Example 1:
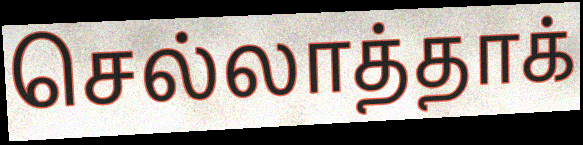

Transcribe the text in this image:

செல்லாத்தாக்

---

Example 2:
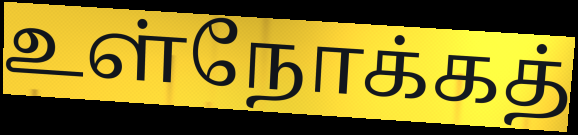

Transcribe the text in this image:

உள்நோக்கத்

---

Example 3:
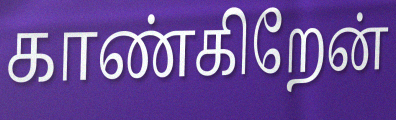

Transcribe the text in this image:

காண்கிறேன்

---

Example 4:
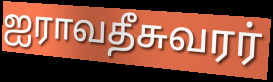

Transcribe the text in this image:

ஐராவதீசுவரர்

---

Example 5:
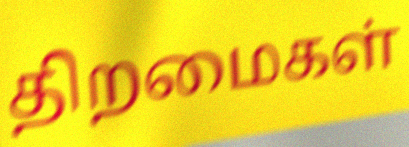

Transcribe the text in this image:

திறமைகள்